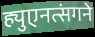
ह्युएनत्संगने